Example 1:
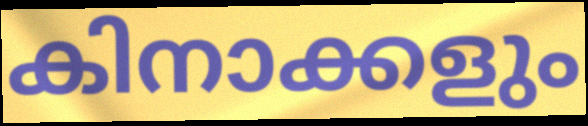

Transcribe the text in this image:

കിനാക്കളും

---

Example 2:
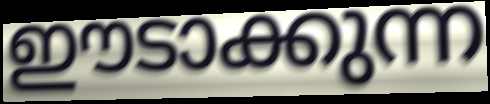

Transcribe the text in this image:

ഈടാക്കുന്ന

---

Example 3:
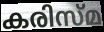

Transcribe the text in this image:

കരിസ്മ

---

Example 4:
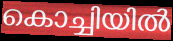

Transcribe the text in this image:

കൊച്ചിയിൽ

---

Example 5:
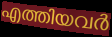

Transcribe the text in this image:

എത്തിയവർ